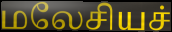
மலேசியச்